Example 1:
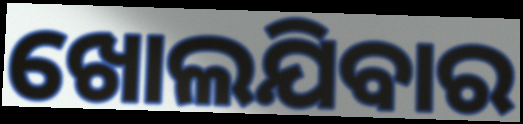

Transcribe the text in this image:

ଖୋଲଯିବାର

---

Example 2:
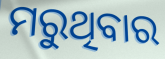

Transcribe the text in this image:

ମରୁଥିବାର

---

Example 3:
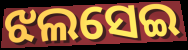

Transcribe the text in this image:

ଝଲସେଇ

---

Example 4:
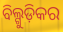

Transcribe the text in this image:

ବିଲ୍ଗୁଡ଼ିକର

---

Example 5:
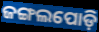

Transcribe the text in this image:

ଜଙ୍ଗଲପୋଡ଼ି